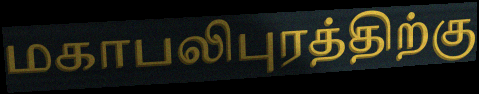
மகாபலிபுரத்திற்கு